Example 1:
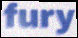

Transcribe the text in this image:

fury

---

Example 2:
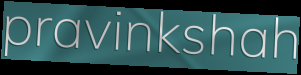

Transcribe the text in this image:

pravinkshah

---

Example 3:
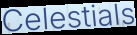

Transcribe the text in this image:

Celestials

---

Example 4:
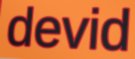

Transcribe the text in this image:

devid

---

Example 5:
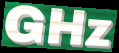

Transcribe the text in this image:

GHz